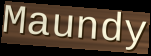
Maundy